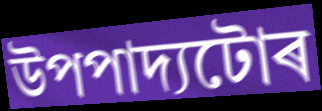
উপপাদ্যটোৰ